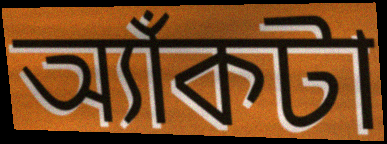
অ্যাঁকটা